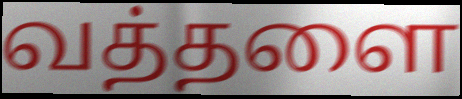
வத்தளை